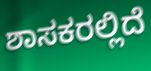
ಶಾಸಕರಲ್ಲಿದೆ